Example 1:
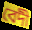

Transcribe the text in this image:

বেদী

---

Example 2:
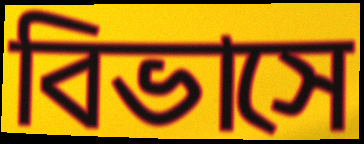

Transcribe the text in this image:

বিভাসে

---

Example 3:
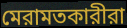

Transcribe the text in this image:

মেরামতকারীরা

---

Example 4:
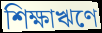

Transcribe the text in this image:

শিক্ষাঋণে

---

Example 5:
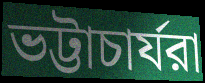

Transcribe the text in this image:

ভট্টাচার্যরা